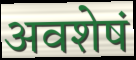
अवशेषं